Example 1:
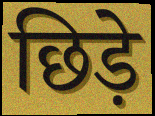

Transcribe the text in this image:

छिड़े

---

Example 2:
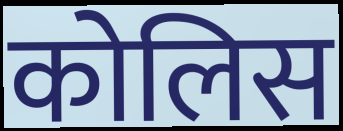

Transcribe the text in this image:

कोलिस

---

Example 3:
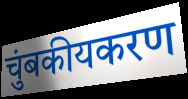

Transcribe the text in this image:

चुंबकीयकरण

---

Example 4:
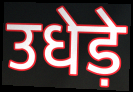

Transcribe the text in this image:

उधेड़े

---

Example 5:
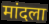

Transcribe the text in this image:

मांदला